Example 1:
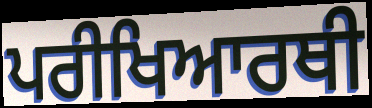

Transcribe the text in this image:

ਪਰੀਖਿਆਰਥੀ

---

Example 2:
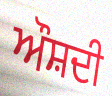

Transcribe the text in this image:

ਔਸ਼ਦੀ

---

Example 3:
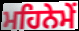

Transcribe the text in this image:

ਮਹਿਨੇਮੇਂ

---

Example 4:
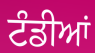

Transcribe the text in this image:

ਟੰਡੀਆਂ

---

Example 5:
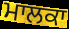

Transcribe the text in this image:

ਮਾਲਕਾ